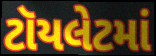
ટૉયલેટમાં